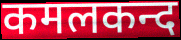
कमलकन्द